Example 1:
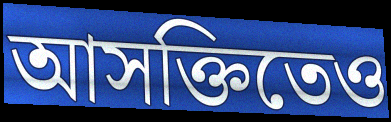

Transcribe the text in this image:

আসক্তিতেও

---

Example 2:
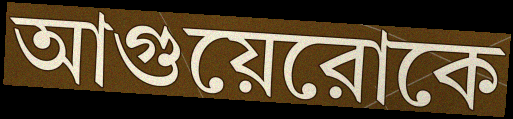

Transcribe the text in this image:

আগুয়েরোকে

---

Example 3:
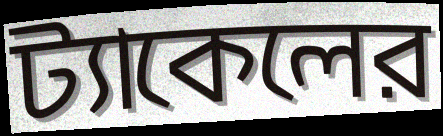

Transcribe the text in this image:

ট্যাকেলের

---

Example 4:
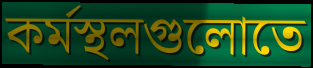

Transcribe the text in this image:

কর্মস্থলগুলোতে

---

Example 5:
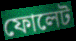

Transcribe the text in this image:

ফোলেট